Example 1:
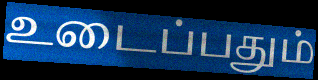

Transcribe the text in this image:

உடைப்பதும்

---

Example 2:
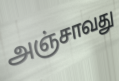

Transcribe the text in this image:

அஞ்சாவது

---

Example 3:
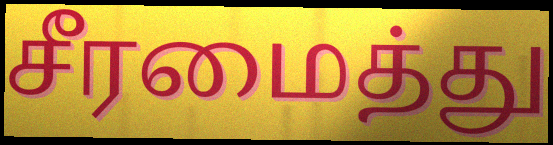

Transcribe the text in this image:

சீரமைத்து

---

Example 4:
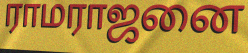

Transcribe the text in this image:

ராமராஜனை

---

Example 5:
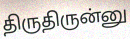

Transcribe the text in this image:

திருதிருன்னு